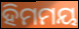
ହିମମୟ